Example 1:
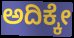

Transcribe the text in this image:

ಅದಿಕ್ಕೇ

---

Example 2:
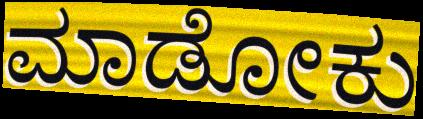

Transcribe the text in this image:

ಮಾಡೋಕು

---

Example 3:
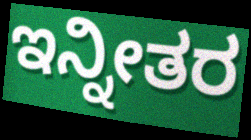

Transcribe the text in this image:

ಇನ್ನೀತರ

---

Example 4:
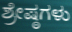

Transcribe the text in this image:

ಶ್ರೇಷ್ಠಗಳು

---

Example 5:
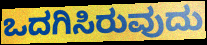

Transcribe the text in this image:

ಒದಗಿಸಿರುವುದು